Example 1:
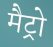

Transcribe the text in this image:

मैट्रो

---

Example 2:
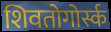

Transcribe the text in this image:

शिवतोगोर्स्क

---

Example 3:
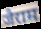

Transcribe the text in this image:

जैराम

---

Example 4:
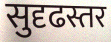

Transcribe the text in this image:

सुदृढस्तर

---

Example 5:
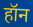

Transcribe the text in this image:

हॉन